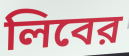
লিবের